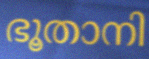
ഭൂതാനി